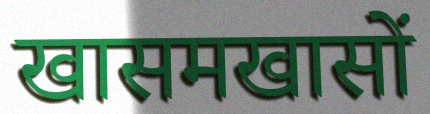
खासमखासों